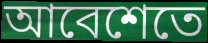
আবেশেতে